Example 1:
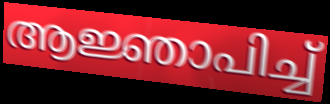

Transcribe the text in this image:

ആജ്ഞാപിച്ച്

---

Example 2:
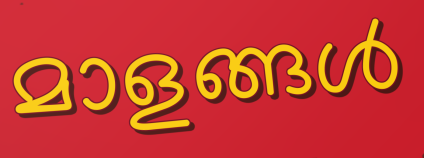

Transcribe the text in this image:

മാളങ്ങൾ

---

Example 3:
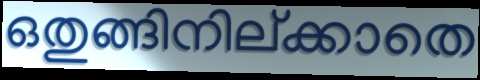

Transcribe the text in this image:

ഒതുങ്ങിനില്ക്കാതെ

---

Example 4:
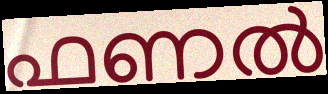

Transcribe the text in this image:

ഫണൽ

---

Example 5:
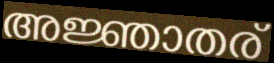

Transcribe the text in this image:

അജ്ഞാതര്